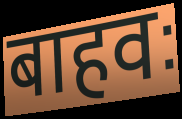
बाहवः